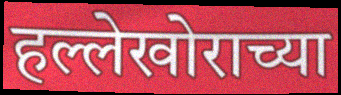
हल्लेखोराच्या